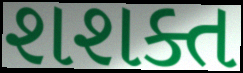
શશક્ત